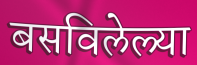
बसविलेल्या